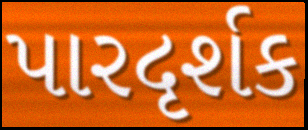
પારદૃર્શક